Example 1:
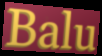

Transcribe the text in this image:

Balu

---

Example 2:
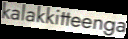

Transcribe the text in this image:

kalakkitteenga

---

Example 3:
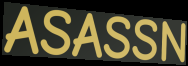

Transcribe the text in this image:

ASASSN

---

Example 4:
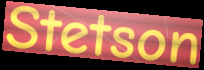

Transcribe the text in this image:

Stetson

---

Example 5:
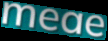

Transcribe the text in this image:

meae